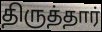
திருத்தார்